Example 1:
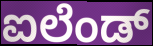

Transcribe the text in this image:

ಐಲೆಂಡ್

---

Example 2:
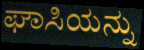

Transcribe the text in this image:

ಘಾಸಿಯನ್ನು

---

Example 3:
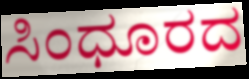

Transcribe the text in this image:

ಸಿಂಧೂರದ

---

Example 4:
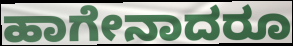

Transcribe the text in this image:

ಹಾಗೇನಾದರೂ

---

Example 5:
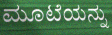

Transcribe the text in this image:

ಮೂಟೆಯನ್ನು